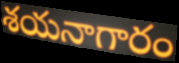
శయనాగారం